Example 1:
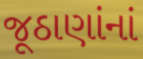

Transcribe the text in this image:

જૂઠાણાંનાં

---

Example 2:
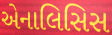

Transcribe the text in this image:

એનાલિસિસ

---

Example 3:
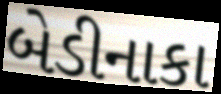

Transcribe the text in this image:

બેડીનાકા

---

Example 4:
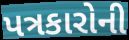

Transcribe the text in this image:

પત્રકારોની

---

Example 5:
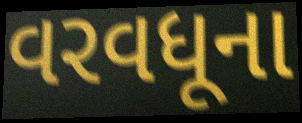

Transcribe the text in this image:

વરવધૂના